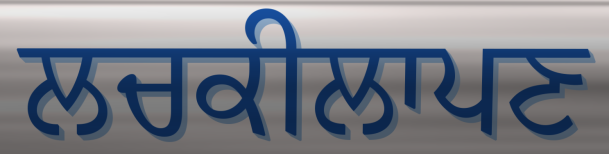
ਲਚਕੀਲਾਪਣ